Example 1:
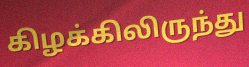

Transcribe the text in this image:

கிழக்கிலிருந்து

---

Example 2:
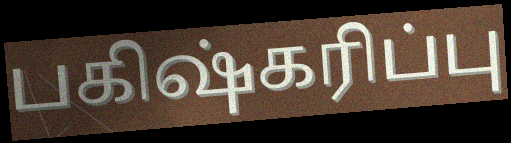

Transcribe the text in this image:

பகிஷ்கரிப்பு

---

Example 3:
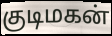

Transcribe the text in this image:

குடிமகன்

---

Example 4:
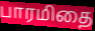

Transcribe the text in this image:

பாரமிதை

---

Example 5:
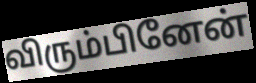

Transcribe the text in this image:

விரும்பினேன்